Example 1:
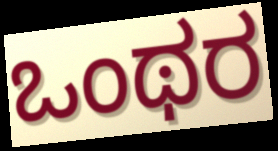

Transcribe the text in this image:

ಒಂಥರ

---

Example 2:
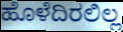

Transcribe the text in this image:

ಹೊಳೆದಿರಲಿಲ್ಲ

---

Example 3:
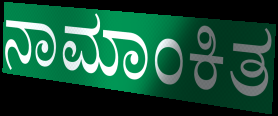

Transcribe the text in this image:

ನಾಮಾಂಕಿತ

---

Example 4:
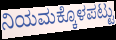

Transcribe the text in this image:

ನಿಯಮಕ್ಕೊಳಪಟ್ಟು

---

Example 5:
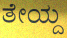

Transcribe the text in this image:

ತೇಯ್ದ